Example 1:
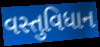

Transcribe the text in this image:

વસ્તુવિધાન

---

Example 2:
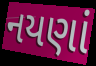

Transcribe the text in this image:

નયણાં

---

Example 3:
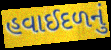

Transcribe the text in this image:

હવાઈદળનું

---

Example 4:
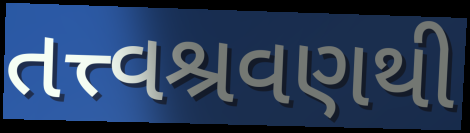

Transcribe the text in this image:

તત્ત્વશ્રવણથી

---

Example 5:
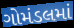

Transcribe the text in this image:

ગોમંડલમાં